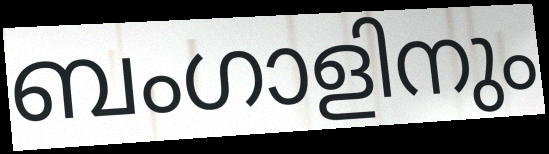
ബംഗാളിനും